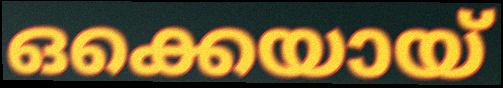
ഒക്കെയായ്